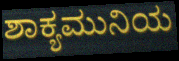
ಶಾಕ್ಯಮುನಿಯ